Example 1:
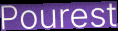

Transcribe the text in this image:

Pourest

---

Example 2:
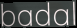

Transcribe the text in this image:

badal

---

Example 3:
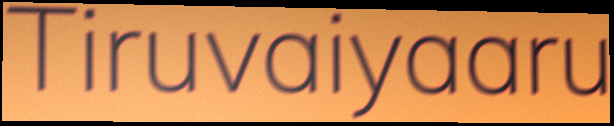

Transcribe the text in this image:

Tiruvaiyaaru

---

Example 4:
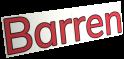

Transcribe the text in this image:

Barren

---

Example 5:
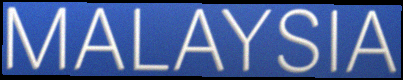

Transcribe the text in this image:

MALAYSIA